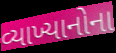
વ્યાખ્યાનોના